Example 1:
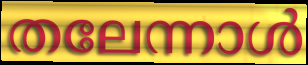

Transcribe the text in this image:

തലേന്നാൾ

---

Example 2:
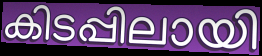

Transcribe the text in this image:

കിടപ്പിലായി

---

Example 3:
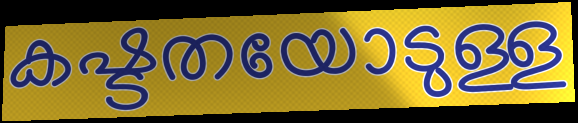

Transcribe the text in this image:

കഷ്ടതയോടുള്ള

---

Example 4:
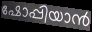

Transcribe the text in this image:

ഷോപ്പിയാൻ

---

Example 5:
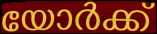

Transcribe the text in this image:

യോർക്ക്